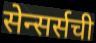
सेन्सर्सची